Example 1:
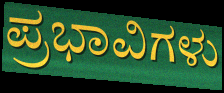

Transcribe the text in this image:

ಪ್ರಭಾವಿಗಳು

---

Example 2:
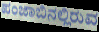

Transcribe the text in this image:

ಪಂಜಾಬಿನಲ್ಲಿರುವ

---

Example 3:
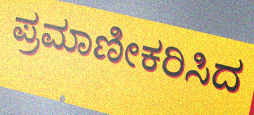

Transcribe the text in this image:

ಪ್ರಮಾಣೀಕರಿಸಿದ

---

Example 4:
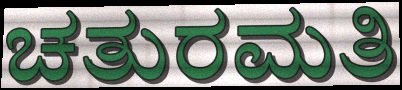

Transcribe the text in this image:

ಚತುರಮತಿ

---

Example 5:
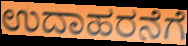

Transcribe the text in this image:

ಉದಾಹರನೆಗೆ